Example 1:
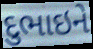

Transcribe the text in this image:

દુભાઇને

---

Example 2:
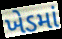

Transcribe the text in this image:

ખેડમાં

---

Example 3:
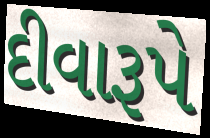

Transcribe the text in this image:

દીવારૂપે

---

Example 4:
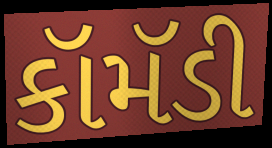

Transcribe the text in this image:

કૉમૅડી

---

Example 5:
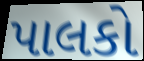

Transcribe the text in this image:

પાલકો